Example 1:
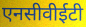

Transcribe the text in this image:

एनसीवीईटी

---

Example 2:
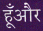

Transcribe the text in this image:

हूँऔर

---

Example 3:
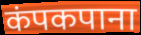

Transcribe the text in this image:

कंपकपाना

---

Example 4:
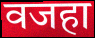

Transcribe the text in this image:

वजहा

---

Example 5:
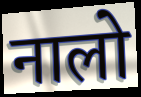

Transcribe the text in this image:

नालो